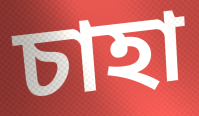
চাহা